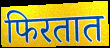
फिरतात